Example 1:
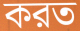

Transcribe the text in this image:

করত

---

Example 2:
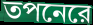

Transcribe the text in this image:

তপনেরে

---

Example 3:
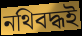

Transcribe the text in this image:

নথিবদ্ধই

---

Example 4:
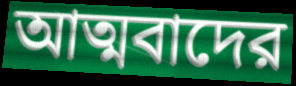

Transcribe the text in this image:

আত্মবাদের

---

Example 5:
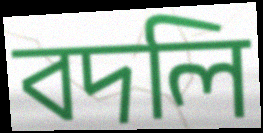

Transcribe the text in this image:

বদলি